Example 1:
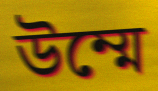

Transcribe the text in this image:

উম্মে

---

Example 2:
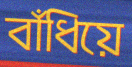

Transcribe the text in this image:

বাঁধিয়ে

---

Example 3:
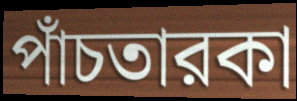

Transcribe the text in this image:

পাঁচতারকা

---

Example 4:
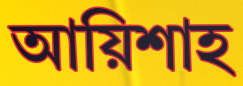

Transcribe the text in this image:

আয়িশাহ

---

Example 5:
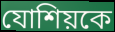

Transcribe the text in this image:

যোশিয়কে